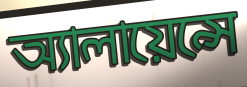
অ্যালায়েন্সে